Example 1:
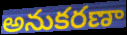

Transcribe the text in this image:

అనుకరణా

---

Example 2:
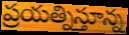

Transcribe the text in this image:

ప్రయత్నిస్తూన్న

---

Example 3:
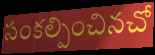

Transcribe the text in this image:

సంకల్పించినచో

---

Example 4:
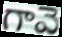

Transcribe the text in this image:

గావె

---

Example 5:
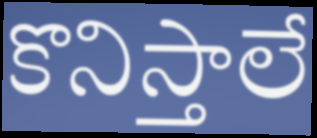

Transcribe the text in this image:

కొనిస్తాలే